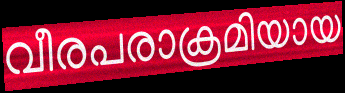
വീരപരാക്രമിയായ